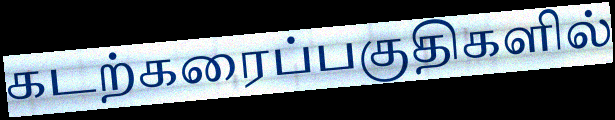
கடற்கரைப்பகுதிகளில்